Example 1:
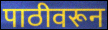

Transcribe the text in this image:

पाठीवरून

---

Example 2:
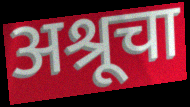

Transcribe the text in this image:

अश्रूचा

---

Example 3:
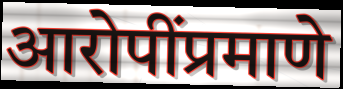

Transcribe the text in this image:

आरोपींप्रमाणे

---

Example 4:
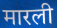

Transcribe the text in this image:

मारली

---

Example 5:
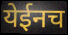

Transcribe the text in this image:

येईनच